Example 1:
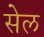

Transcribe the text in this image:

सेल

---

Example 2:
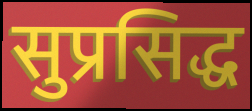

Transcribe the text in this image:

सुप्रसिद्ध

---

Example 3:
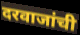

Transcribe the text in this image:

दरवाजांची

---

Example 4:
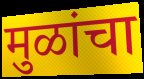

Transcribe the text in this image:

मुळांचा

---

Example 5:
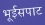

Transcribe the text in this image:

भूईसपाट